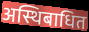
अस्थिबाधित